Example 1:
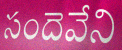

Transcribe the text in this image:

సందెవేని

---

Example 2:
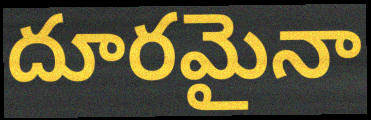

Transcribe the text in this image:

దూరమైనా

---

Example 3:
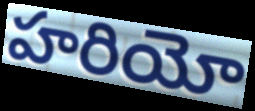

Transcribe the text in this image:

హరియో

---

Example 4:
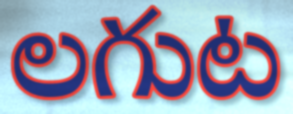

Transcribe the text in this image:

లగుట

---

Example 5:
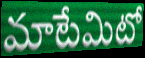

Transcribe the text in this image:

మాటేమిటో